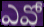
ఎవో